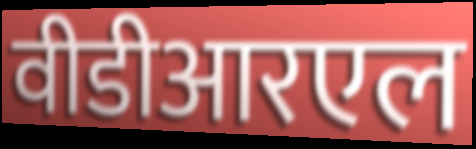
वीडीआरएल